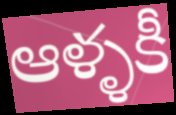
ఆళ్ళకీ